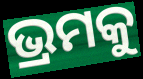
ଭ୍ରମକୁ